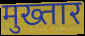
मुख्तार